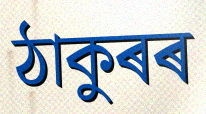
ঠাকুৰৰ